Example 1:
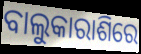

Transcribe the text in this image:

ବାଲୁକାରାଶିରେ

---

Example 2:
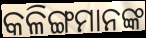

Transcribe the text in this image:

କଳିଙ୍ଗମାନଙ୍କ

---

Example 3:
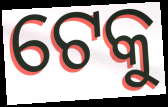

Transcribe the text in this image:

ଟେକୁ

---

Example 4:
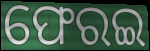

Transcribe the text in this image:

ଫେରଇ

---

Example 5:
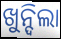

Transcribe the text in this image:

ଖୁନ୍ଦିଲା